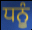
ਧਨੂੰ